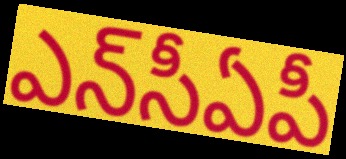
ఎన్‌సీఏపీ